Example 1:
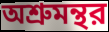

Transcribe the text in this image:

অশ্রুমন্থর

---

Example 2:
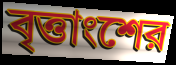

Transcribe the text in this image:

বৃত্তাংশের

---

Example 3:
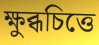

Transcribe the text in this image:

ক্ষুব্ধচিত্তে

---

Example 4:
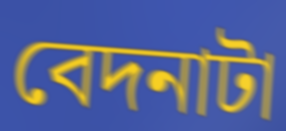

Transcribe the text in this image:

বেদনাটা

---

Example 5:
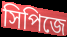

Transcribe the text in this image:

সিপিজে